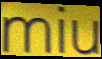
miu